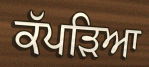
ਕੱਪੜਿਆ